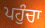
ਪਹੁੰਚਾ